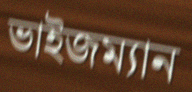
ভাইজম্যান